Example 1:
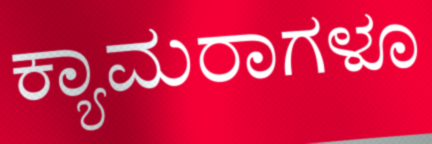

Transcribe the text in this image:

ಕ್ಯಾಮರಾಗಳೂ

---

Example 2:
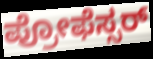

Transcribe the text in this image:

ಪ್ರೋಫೆಸ್ಸರ್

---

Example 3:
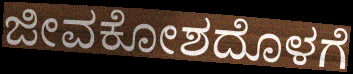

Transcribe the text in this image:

ಜೀವಕೋಶದೊಳಗೆ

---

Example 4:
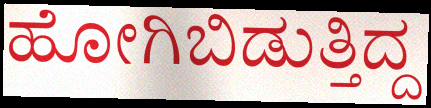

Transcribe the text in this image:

ಹೋಗಿಬಿಡುತ್ತಿದ್ದ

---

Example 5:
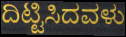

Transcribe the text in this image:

ದಿಟ್ಟಿಸಿದವಳು